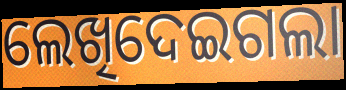
ଲେଖିଦେଇଗଲା